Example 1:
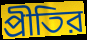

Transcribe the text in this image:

প্রীতির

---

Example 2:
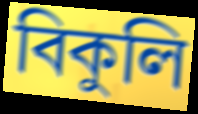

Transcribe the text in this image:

বিকুলি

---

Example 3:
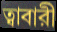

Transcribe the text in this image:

ত্বাবারী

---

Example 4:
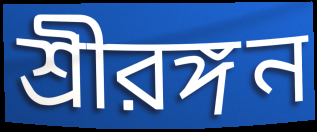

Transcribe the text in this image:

শ্রীরঙ্গন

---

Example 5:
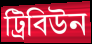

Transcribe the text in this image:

ট্রিবিউন